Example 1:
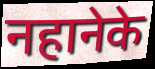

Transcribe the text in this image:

नहानेके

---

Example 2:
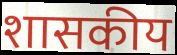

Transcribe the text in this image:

शासकीय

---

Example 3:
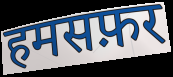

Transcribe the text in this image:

हमसफ़र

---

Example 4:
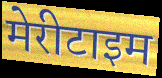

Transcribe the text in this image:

मेरीटाइम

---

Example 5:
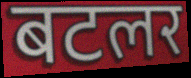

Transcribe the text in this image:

बटलर